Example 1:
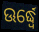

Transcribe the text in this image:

ଊର୍ଦ୍ଧ୍ୱେ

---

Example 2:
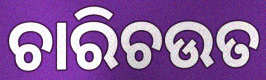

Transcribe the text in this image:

ଚାରିଚଉତ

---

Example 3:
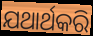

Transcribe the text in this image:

ଯଥାର୍ଥକରି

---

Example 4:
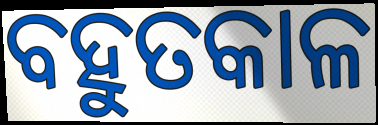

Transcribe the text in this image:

ବହୁତକାଳ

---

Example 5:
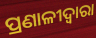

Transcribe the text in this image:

ପ୍ରଣାଳୀଦ୍ୱାରା